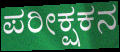
ಪರೀಕ್ಷಕನ